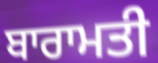
ਬਾਰਾਮਤੀ